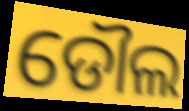
ଡୌଲ